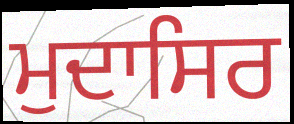
ਮੁਦਾਸਿਰ